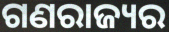
ଗଣରାଜ୍ୟର